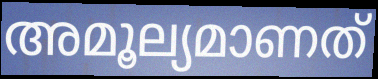
അമൂല്യമാണത്